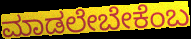
ಮಾಡಲೇಬೇಕೆಂಬ